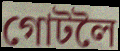
গোটলৈ